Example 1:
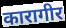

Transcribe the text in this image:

कारागीर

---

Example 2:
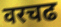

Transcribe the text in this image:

वरचढ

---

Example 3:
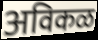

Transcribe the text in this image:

अविकळ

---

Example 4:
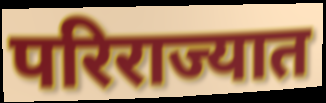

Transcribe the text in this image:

परिराज्यात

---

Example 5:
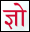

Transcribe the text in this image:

ज्ञो